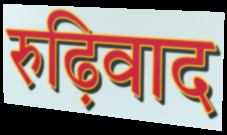
रुढ़िवाद